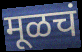
मूळचं